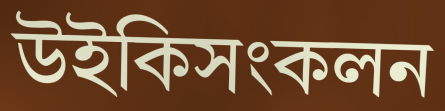
উইকিসংকলন